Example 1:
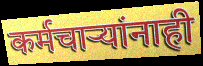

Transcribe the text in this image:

कर्मचाऱ्यांनाही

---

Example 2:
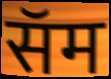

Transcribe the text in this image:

सॅम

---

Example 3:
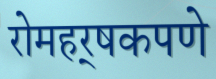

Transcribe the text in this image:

रोमहर्षकपणे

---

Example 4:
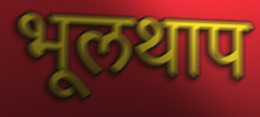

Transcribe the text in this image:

भूलथाप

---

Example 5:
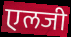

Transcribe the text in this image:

एलजी